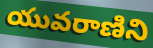
యువరాణిని